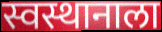
स्वस्थानाला